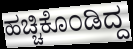
ಹಚ್ಚಿಕೊಂಡಿದ್ದ